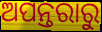
ଅପନ୍ତରାରୁ